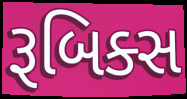
રૂબિક્સ